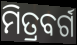
ମିତ୍ରବର୍ଗ